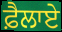
ਫ਼ੈਲਾਏ